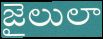
జైలులా